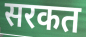
सरकत